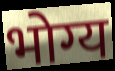
भोग्य